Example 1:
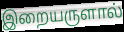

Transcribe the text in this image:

இறையருளால்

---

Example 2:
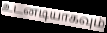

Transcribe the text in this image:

உடனடியாகவும்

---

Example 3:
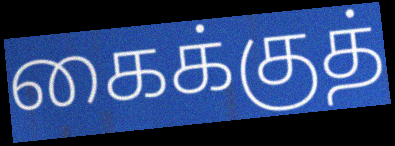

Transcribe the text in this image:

கைக்குத்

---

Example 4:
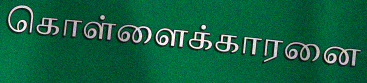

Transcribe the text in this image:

கொள்ளைக்காரனை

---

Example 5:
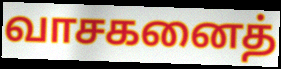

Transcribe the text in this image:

வாசகனைத்